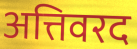
अत्तिवरद